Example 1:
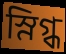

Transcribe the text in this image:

স্নিগ্ধ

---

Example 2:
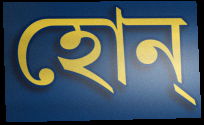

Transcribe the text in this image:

হোন্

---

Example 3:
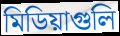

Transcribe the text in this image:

মিডিয়াগুলি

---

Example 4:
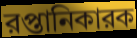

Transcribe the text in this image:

রপ্তানিকারক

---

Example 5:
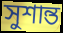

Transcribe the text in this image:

সুশান্ত